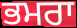
ਭਮਰਾ